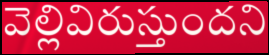
వెల్లివిరుస్తుందని